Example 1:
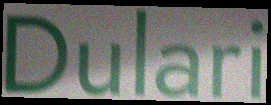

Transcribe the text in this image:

Dulari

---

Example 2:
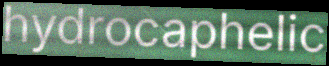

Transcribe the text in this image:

hydrocaphelic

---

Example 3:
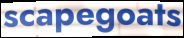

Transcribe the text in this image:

scapegoats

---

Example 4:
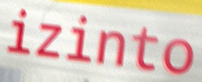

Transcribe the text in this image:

izinto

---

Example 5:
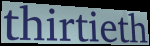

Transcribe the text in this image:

thirtieth